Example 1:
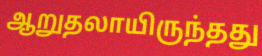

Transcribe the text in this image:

ஆறுதலாயிருந்தது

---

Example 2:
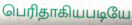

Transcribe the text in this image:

பெரிதாகியபடியே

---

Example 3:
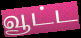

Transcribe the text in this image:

வூட்ட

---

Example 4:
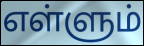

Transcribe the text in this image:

எள்ளும்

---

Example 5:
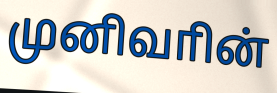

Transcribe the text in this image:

முனிவரின்